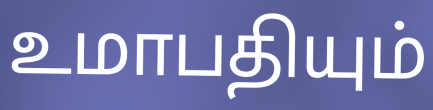
உமாபதியும்